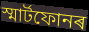
স্মাৰ্টফোনৰ